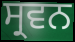
ਸ੍ਰਵਨ